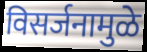
विसर्जनामुळे